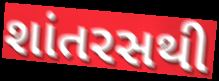
શાંતરસથી